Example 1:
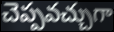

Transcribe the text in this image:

చెప్పవచ్చుగా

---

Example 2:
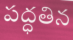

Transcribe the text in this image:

పద్ధతిన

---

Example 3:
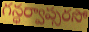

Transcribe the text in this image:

గన్ధర్వాప్సరసో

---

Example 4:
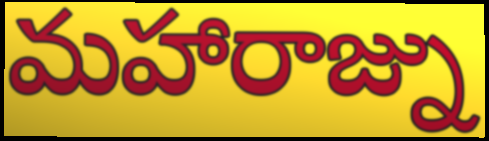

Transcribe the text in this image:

మహారాజ్ను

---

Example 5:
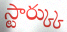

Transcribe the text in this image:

స్టార్క్కు